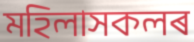
মহিলাসকলৰ